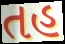
તહ